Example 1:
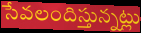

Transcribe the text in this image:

సేవలందిస్తున్నట్లు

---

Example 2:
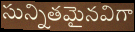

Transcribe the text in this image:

సున్నితమైనవిగా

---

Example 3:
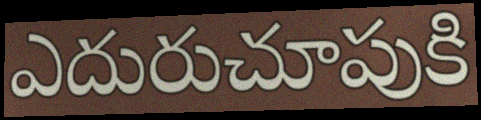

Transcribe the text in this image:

ఎదురుచూపుకి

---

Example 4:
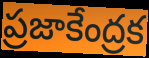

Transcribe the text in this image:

ప్రజాకేంద్రక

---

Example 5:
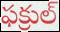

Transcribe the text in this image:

ఫక్రుల్